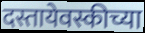
दस्तायेवस्कीच्या